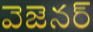
వెజెనర్